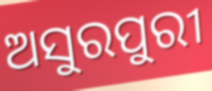
ଅସୁରପୁରୀ